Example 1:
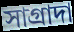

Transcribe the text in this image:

সাগ্রাদা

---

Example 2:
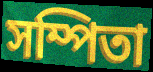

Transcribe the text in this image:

সম্পিতা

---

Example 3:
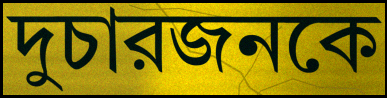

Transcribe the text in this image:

দুচারজনকে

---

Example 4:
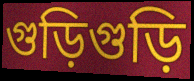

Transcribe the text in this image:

গুড়িগুড়ি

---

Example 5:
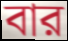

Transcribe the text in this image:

বার